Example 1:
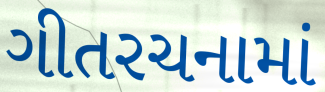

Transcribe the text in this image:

ગીતરચનામાં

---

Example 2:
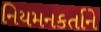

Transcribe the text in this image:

નિયમનકર્તાને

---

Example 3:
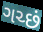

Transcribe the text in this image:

ગચ્છં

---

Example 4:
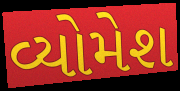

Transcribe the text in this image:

વ્યોમેશ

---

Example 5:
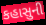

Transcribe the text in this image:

કહાસુની